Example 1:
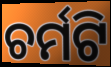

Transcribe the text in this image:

ଚର୍ମଟି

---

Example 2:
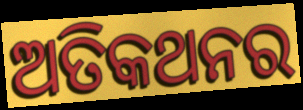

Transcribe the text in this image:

ଅତିକଥନର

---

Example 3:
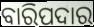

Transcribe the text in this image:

ବାରିପଦାର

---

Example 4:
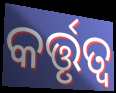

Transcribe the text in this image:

କର୍ତ୍ତୃତ୍ୱ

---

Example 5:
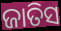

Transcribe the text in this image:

ଜାତିସ